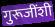
गुरूजींशी